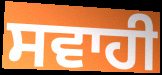
ਸਵਾਹੀ